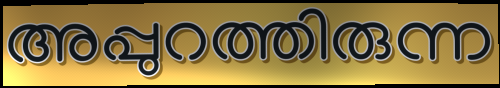
അപ്പുറത്തിരുന്ന